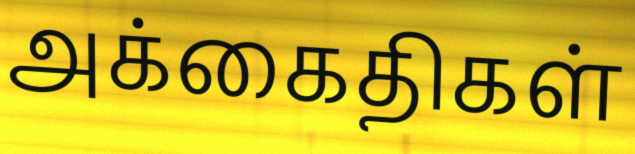
அக்கைதிகள்